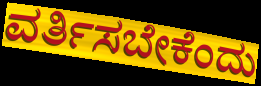
ವರ್ತಿಸಬೇಕೆಂದು